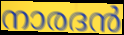
നാരദൻ